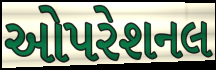
ઓપરેશનલ